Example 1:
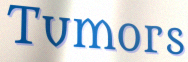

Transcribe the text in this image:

Tumors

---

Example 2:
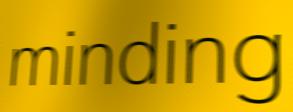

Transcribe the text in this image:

minding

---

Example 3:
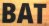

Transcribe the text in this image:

BAT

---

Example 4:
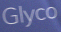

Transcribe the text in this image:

Glyco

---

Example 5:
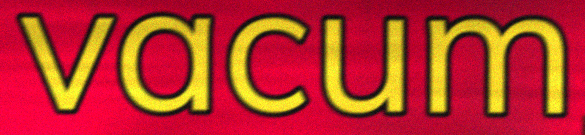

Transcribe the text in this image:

vacum